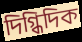
দিগ্ধিদিক